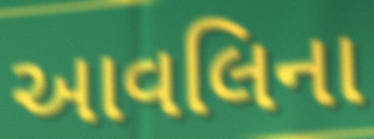
આવલિના